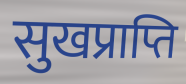
सुखप्राप्ति